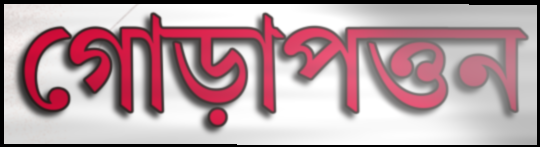
গোড়াপত্তন